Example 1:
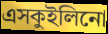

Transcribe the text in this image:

এসকুইলিনো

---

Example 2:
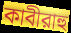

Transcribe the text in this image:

কাবীরাহু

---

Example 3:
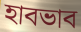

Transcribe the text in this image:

হাবভাব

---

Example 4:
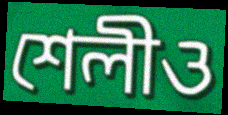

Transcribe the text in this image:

শেলীও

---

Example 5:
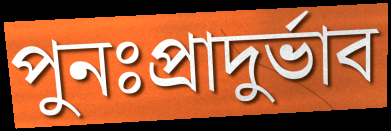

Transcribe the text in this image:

পুনঃপ্রাদুর্ভাব